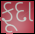
ફૂદા